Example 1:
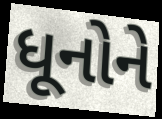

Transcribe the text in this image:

ધૂનોને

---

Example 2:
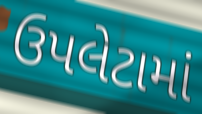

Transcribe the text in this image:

ઉપલેટામાં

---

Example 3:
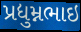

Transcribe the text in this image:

પ્રદ્યુમ્નભાઇ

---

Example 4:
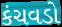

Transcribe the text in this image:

કંચવડો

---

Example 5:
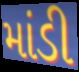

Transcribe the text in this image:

માંડી